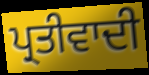
ਪ੍ਰਤੀਵਾਦੀ